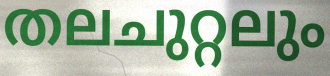
തലചുറ്റലും